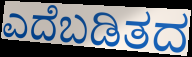
ಎದೆಬಡಿತದ